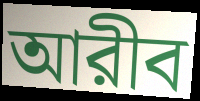
আরীব